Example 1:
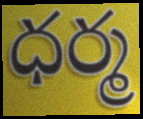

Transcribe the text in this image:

ధర్మ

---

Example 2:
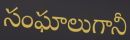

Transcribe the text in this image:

సంఘాలుగానీ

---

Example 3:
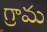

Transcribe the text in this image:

గ్రామ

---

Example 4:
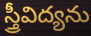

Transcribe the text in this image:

స్త్రీవిద్యను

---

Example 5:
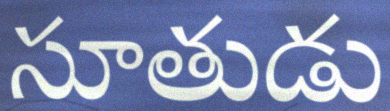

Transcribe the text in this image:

సూతుడు